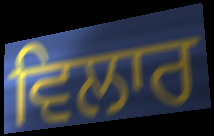
ਵਿਲਾਰ